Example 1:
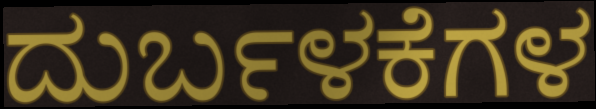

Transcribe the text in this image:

ದುರ್ಬಳಕೆಗಳ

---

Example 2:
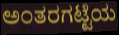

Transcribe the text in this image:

ಅಂತರಗಟ್ಟೆಯ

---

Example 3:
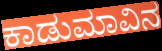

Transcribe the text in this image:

ಕಾಡುಮಾವಿನ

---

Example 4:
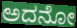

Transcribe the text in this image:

ಅದನೋ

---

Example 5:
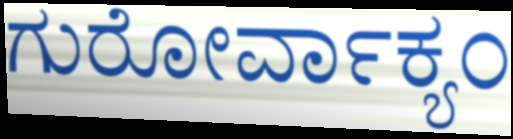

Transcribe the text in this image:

ಗುರೋರ್ವಾಕ್ಯಂ